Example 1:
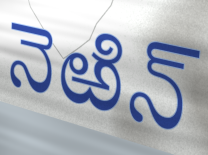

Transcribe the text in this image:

నెఱిన్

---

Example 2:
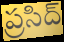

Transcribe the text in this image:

ప్రసిద్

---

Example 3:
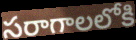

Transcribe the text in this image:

సరాగాలలోకి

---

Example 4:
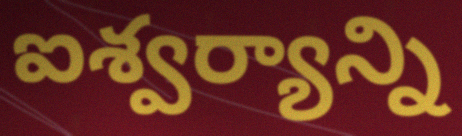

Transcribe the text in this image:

ఐశ్వర్యాన్ని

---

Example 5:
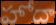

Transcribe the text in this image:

హోదా